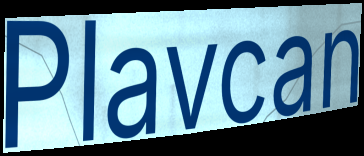
Plavcan